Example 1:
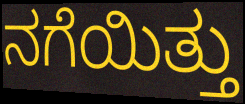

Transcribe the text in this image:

ನಗೆಯಿತ್ತು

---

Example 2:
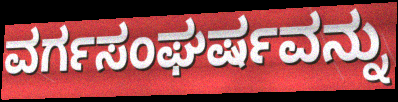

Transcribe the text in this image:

ವರ್ಗಸಂಘರ್ಷವನ್ನು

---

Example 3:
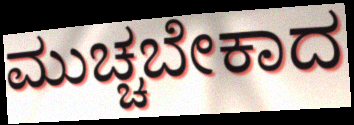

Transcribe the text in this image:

ಮುಚ್ಚಬೇಕಾದ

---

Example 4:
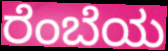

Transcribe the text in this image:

ರೆಂಬೆಯ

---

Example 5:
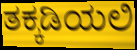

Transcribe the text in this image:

ತಕ್ಕಡಿಯಲಿ